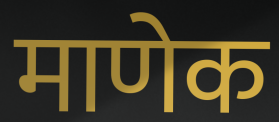
माणेक